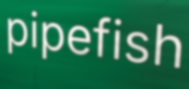
pipefish